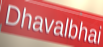
Dhavalbhai